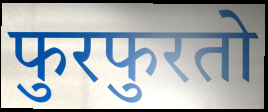
फुरफुरतो